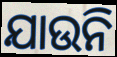
ଯାଉନି